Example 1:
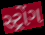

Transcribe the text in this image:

સ્ટ્રોંગ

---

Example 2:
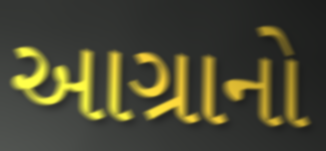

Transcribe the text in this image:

આગ્રાનો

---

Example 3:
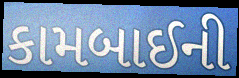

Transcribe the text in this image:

કામબાઈની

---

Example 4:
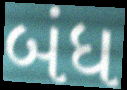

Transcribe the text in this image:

બંધ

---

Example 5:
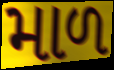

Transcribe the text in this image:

માળ